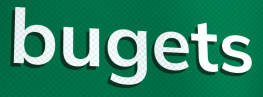
bugets